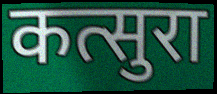
कत्सुरा